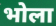
भोला